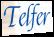
Telfer